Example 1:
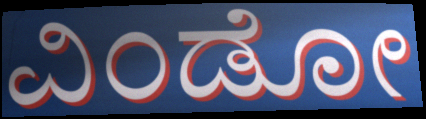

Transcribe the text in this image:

ವಿಂಡೋ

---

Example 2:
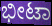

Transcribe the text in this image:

ಭೀಟಾ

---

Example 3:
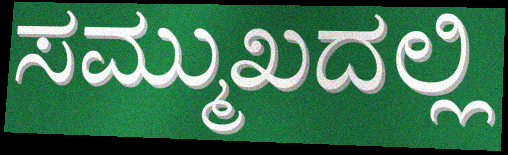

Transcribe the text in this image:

ಸಮ್ಮುಖದಲ್ಲಿ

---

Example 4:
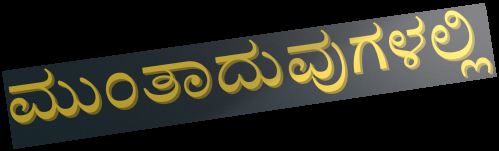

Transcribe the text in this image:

ಮುಂತಾದುವುಗಳಲ್ಲಿ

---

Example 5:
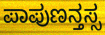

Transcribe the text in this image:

ಪಾಪುಣನ್ತಸ್ಸ